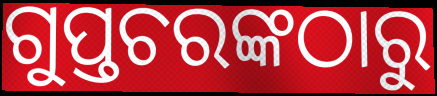
ଗୁପ୍ତଚରଙ୍କଠାରୁ